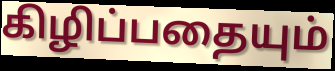
கிழிப்பதையும்